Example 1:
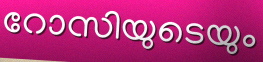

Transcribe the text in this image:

റോസിയുടെയും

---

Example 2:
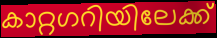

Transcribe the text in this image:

കാറ്റഗറിയിലേക്ക്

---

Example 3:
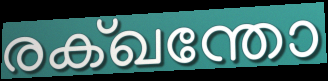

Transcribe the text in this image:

രക്ഖന്തോ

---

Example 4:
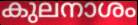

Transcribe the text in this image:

കുലനാശം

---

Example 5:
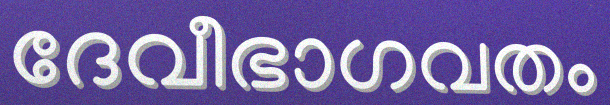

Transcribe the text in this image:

ദേവീഭാഗവതം